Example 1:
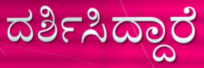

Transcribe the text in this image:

ದರ್ಶಿಸಿದ್ದಾರೆ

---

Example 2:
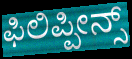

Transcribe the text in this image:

ಫಿಲಿಪ್ಪೀನ್ಸ್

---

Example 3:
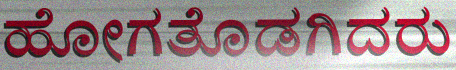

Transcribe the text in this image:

ಹೋಗತೊಡಗಿದರು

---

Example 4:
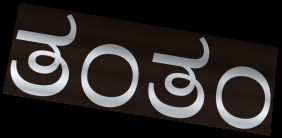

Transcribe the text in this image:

ತಂತಂ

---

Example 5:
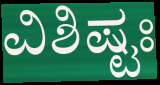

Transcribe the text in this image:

ವಿಶಿಷ್ಟಃ